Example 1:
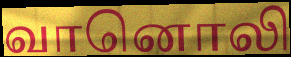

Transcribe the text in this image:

வானொலி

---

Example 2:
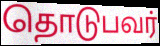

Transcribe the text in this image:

தொடுபவர்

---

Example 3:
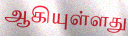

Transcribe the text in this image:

ஆகியுள்ளது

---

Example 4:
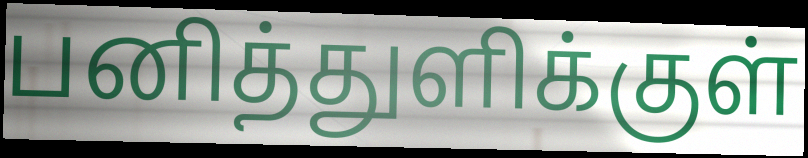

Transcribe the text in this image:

பனித்துளிக்குள்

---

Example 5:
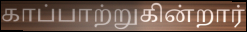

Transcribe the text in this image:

காப்பாற்றுகின்றார்